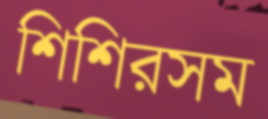
শিশিরসম